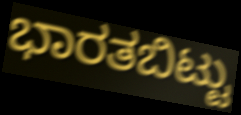
ಭಾರತಬಿಟ್ಟು